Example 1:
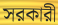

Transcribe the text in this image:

সরকারী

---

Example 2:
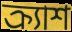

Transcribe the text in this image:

ক্র্যাশ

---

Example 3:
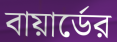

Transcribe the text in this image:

বায়ার্ডের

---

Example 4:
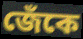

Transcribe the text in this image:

জেঁকে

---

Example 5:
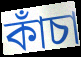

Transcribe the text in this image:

কাঁচা